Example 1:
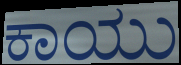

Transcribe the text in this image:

ಕಾಯು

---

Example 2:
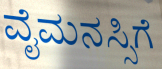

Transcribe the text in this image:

ವೈಮನಸ್ಸಿಗೆ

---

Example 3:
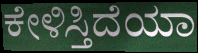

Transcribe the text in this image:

ಕೇಳಿಸ್ತಿದೆಯಾ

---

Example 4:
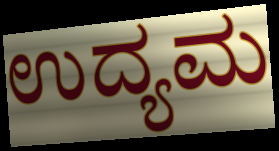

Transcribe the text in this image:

ಉದ್ಯಮ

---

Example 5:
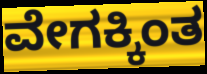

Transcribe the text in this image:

ವೇಗಕ್ಕಿಂತ